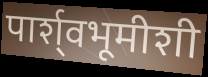
पार्श्वभूमीशी